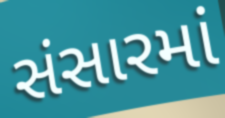
સંસારમાં